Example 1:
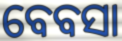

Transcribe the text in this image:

ବେବସା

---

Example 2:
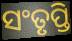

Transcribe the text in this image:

ସଂତୃପ୍ତି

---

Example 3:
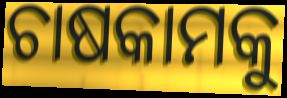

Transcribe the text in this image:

ଚାଷକାମକୁ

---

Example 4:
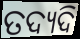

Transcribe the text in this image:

ତଦ୍ୟଦି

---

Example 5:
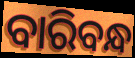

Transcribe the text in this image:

ବାରିବନ୍ଧ